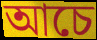
আচে